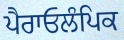
ਪੈਰਾਓਲੰਪਿਕ